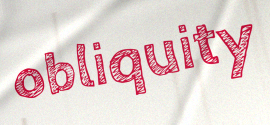
obliquity